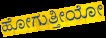
ಹೋಗುತ್ತೀಯೋ